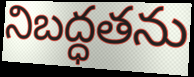
నిబద్ధతను